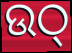
ଉଠ୍